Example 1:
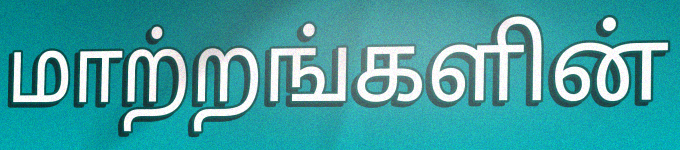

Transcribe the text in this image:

மாற்றங்களின்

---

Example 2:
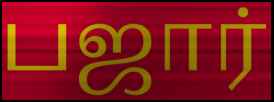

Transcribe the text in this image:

பஜார்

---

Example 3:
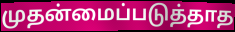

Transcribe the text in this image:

முதன்மைப்படுத்தாத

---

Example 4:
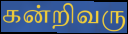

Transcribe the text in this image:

கன்றிவரு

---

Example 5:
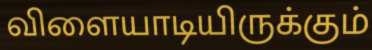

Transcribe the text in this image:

விளையாடியிருக்கும்